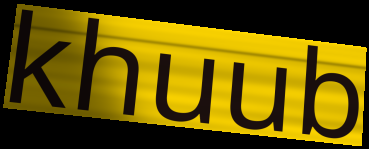
khuub